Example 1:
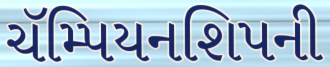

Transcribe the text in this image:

ચૅમ્પિયનશિપની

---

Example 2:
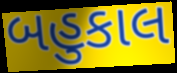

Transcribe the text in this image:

બહુકાલ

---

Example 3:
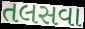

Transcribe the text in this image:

તલસવા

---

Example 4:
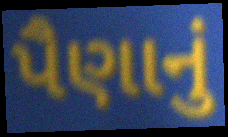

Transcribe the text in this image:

પૈણાનું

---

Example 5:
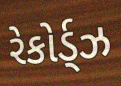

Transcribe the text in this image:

રેકોર્ડ્ઝ